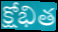
క్షోభిత